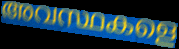
അവസ്ഥകളെ